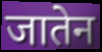
जातेन